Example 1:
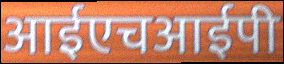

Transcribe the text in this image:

आईएचआईपी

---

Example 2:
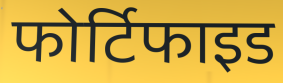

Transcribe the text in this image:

फोर्टिफाइड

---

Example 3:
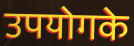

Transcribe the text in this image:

उपयोगके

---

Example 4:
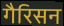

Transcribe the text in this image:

गैरिसन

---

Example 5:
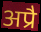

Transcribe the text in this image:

अप्रै